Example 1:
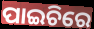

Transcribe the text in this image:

ପାଇଚିରେ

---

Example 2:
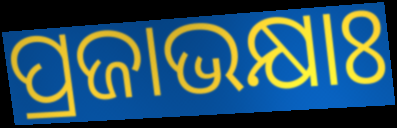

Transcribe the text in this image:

ପ୍ରଜାଭକ୍ଷାଃ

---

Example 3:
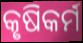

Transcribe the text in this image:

କୃଷିକର୍ମ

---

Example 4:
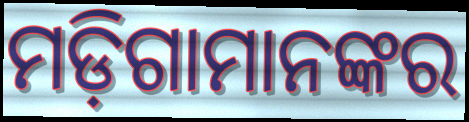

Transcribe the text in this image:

ମଡ଼ିଗାମାନଙ୍କର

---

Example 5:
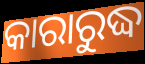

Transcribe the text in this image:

କାରାରୁଦ୍ଧ